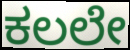
ಕಲಲೇ